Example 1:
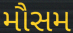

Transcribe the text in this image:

મૌસમ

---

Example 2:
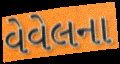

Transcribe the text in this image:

વેવેલના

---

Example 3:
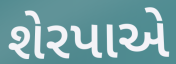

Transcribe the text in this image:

શેરપાએ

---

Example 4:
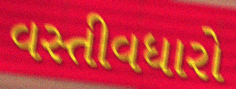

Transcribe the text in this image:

વસ્તીવધારો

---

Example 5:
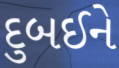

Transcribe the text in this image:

દુબઈને